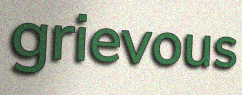
grievous